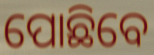
ପୋଛିବେ